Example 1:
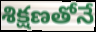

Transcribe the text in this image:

శిక్షణతోనే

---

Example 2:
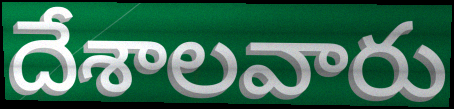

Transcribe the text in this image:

దేశాలవారు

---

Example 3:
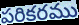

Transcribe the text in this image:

పరికరము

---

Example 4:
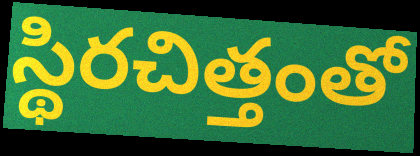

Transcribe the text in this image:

స్థిరచిత్తంతో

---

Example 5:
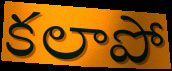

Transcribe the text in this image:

కలాపో